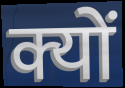
क्‍यों